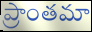
ప్రాంతమా